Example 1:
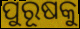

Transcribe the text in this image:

ପୁରୂଷକୁ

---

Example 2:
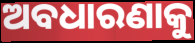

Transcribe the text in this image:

ଅବଧାରଣାକୁ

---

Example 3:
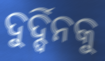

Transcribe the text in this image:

ଦୁର୍ଦ୍ଦିନକୁ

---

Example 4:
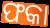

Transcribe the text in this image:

ଫକା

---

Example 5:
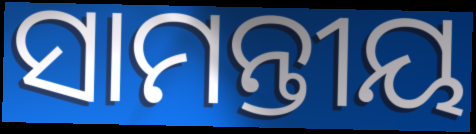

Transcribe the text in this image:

ସାମନ୍ତୀୟ